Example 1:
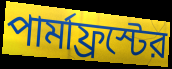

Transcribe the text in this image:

পার্মাফ্রস্টের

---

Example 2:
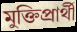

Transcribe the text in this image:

মুক্তিপ্রার্থী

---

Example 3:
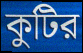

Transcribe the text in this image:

কুটির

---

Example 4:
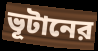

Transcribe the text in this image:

ভূটানের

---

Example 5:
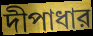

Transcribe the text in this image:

দীপাধার